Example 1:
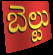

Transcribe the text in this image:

బెల్టు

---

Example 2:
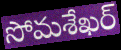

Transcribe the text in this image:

సోమశేఖర్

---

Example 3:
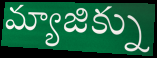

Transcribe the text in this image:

మ్యాజిక్ను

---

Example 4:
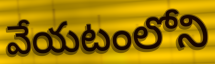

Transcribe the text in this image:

వేయటంలోని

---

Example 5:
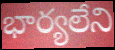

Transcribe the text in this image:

భార్యలేని